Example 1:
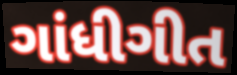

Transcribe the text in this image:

ગાંધીગીત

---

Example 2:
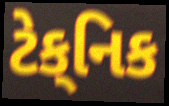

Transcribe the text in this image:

ટેક્‌નિક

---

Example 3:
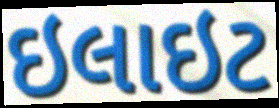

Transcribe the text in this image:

ઇલાઇટ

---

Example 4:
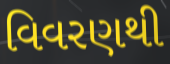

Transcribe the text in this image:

વિવરણથી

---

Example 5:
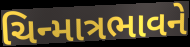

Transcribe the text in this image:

ચિન્માત્રભાવને